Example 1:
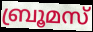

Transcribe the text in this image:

ബ്രൂമസ്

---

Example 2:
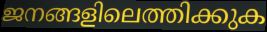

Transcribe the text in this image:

ജനങ്ങളിലെത്തിക്കുക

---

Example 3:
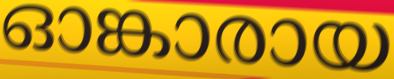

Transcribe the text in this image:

ഓങ്കാരായ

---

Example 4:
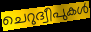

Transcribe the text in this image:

ചെറുദ്വീപുകൾ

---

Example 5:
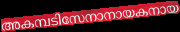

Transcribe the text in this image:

അകമ്പടിസേനാനായകനായ